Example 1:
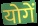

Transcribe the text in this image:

योगें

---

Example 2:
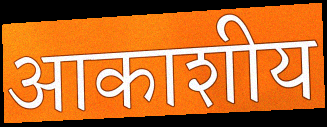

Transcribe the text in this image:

आकाशीय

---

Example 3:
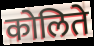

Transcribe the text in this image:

कोलिते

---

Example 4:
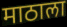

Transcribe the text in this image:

माठाला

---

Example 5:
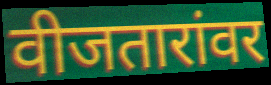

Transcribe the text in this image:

वीजतारांवर